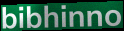
bibhinno